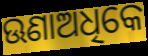
ଊଣାଅଧିକେ